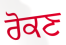
ਰੋਕਣ